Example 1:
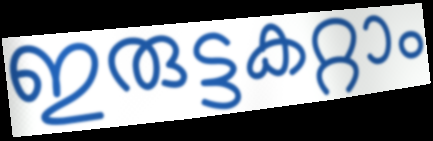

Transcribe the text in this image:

ഇരുട്ടകറ്റാം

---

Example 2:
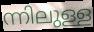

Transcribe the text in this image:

ന്നിലുള്ള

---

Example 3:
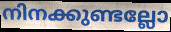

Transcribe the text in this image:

നിനക്കുണ്ടല്ലോ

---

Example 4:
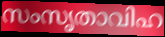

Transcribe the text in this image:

സംസൃതാവിഹ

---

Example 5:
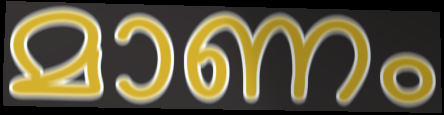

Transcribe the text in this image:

മാണം